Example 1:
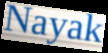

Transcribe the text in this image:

Nayak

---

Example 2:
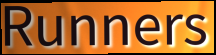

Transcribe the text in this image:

Runners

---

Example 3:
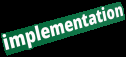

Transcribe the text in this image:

implementation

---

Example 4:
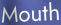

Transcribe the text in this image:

Mouth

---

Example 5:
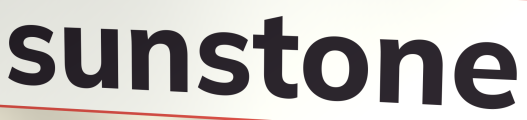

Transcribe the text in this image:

sunstone